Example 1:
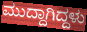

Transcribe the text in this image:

ಮುದ್ದಾಗಿದ್ದಳು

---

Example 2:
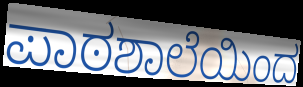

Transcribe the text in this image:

ಪಾಠಶಾಲೆಯಿಂದ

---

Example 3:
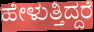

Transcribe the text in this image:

ಹೇಳುತ್ತಿದ್ದರೆ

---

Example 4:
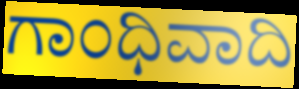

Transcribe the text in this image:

ಗಾಂಧಿವಾದಿ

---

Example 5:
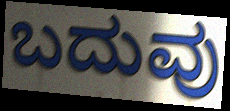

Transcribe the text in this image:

ಬದುವು